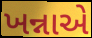
ખન્નાએ